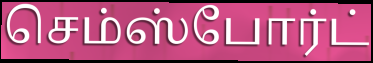
செம்ஸ்போர்ட்